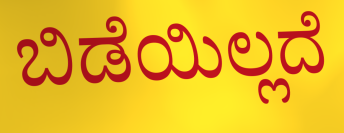
ಬಿಡೆಯಿಲ್ಲದೆ